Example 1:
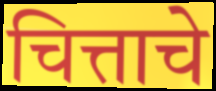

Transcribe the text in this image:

चित्ताचे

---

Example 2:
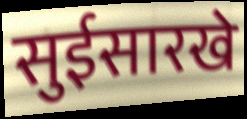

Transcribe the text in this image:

सुईसारखे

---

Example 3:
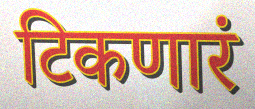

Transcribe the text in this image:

टिकणारं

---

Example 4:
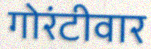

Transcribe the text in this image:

गोरंटीवार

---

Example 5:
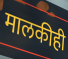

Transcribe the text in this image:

मालकीही